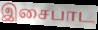
இசைபாட